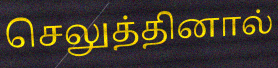
செலுத்தினால்